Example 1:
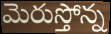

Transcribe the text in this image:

మెరుస్తోన్న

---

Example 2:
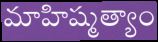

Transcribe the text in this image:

మాహిష్మత్యాం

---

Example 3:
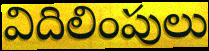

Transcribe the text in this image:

విదిలింపులు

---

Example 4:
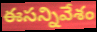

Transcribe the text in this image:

ఈసన్నివేశం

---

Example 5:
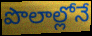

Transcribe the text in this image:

పొలాల్లోనే